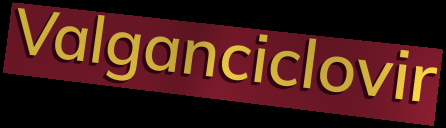
Valganciclovir